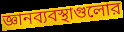
জ্ঞানব্যবস্থাগুলোর